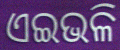
ଏଇଭଳି